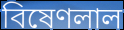
বিষেণলাল